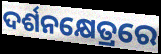
ଦର୍ଶନକ୍ଷେତ୍ରରେ